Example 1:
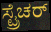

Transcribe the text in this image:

ಸ್ಟ್ರೆಚರ್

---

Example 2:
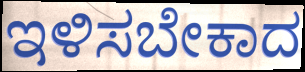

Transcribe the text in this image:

ಇಳಿಸಬೇಕಾದ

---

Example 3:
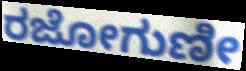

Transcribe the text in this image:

ರಜೋಗುಣೀ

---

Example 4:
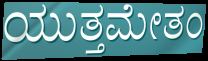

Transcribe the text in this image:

ಯುತ್ತಮೇತಂ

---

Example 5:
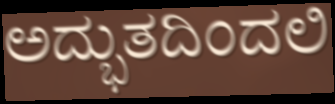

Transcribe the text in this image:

ಅದ್ಭುತದಿಂದಲಿ